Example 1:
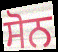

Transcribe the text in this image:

ਸੋਨ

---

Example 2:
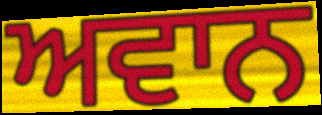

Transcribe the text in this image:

ਅਵਾਨ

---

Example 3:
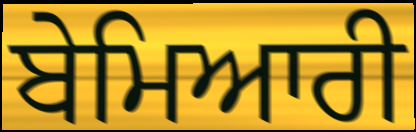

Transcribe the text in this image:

ਬੇਮਿਆਰੀ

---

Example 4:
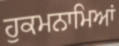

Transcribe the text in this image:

ਹੁਕਮਨਾਮਿਆਂ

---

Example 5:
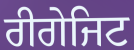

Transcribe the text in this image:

ਰੀਗੇਜਿਟ